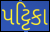
પટ્ટિકા